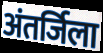
अंतर्जिला